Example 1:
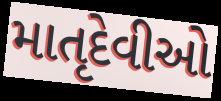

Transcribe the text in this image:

માતૃદેવીઓ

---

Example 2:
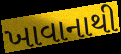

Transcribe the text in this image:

ખાવાનાથી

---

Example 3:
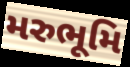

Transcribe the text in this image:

મરુભૂમિ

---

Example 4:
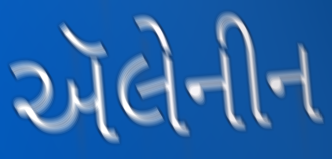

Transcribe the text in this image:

ઍલેનીન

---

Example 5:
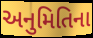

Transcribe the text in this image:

અનુમિતિના